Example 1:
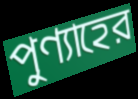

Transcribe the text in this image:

পুণ্যাহের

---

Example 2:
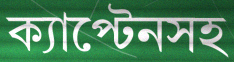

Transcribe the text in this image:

ক্যাপ্টেনসহ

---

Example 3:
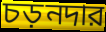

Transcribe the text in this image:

চড়নদার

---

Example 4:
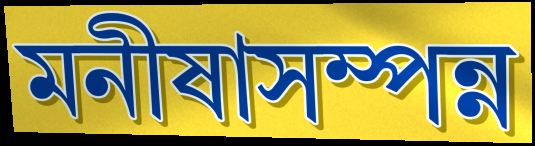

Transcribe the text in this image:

মনীষাসম্পন্ন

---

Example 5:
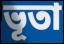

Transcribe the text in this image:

ভূতা